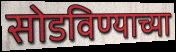
सोडविण्याच्या